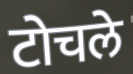
टोचले